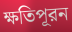
ক্ষতিপূরন